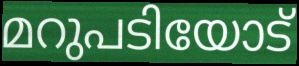
മറുപടിയോട്